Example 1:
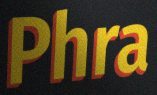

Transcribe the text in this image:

Phra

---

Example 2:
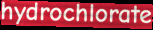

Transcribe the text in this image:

hydrochlorate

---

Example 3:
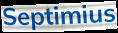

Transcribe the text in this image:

Septimius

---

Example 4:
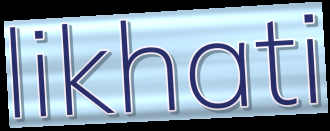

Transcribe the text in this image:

likhati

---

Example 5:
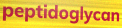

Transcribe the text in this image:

peptidoglycan